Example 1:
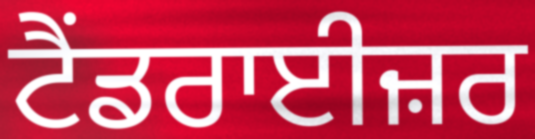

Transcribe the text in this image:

ਟੈਂਡਰਾਈਜ਼ਰ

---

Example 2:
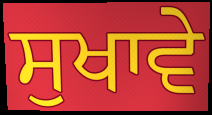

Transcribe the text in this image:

ਸੁਖਾਵੇ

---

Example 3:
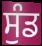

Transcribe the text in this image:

ਸੁੰਡ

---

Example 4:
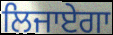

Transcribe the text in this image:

ਲਿਜਾਏਗਾ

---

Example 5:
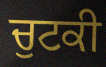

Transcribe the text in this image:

ਚੁਟਕੀ